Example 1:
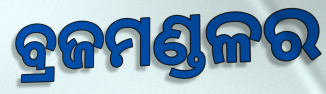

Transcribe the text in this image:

ବ୍ରଜମଣ୍ଡଳର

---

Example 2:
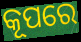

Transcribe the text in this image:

କୂପରେ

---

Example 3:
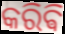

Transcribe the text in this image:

କରିଵି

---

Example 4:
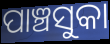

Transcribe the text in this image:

ପାଞ୍ଚସୁକା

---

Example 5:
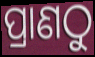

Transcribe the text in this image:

ପ୍ରାଣଠୁ